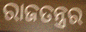
ରାଜତନ୍ତ୍ରର